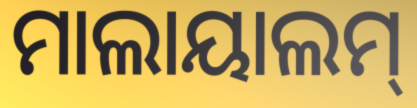
ମାଲାୟାଲମ୍